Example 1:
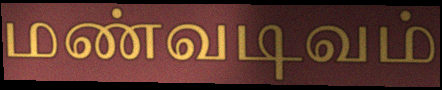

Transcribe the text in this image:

மண்வடிவம்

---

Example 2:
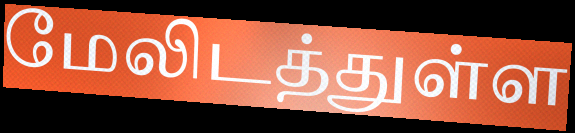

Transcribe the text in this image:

மேலிடத்துள்ள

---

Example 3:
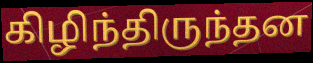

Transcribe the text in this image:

கிழிந்திருந்தன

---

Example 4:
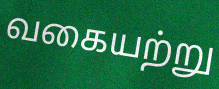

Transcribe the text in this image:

வகையற்று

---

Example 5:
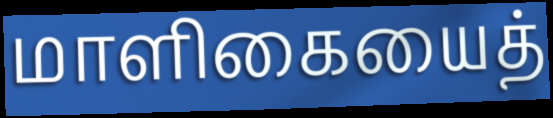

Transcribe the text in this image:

மாளிகையைத்